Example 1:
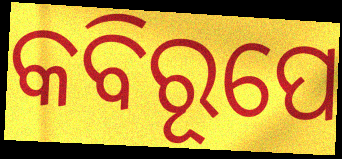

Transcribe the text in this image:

କବିରୂପେ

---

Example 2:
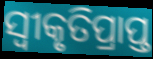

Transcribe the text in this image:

ସ୍ବୀକୃତିପ୍ରାପ୍ତ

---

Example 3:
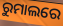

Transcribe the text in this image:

ରୁମାଲରେ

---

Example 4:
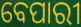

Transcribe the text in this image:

ବେପାରୀ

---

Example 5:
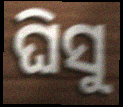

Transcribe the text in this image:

ଘିସୁ